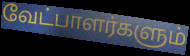
வேட்பாளர்களும்